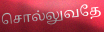
சொல்லுவதே